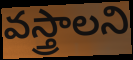
వస్త్రాలని